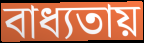
বাধ্যতায়